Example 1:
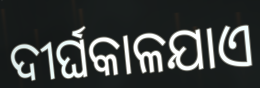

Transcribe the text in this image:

ଦୀର୍ଘକାଳଯାଏ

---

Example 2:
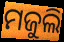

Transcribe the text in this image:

ମଜୁଲି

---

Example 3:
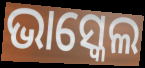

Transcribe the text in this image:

ଭାସ୍କେଲ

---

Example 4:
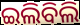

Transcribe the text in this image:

ଇଲିବିଲି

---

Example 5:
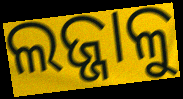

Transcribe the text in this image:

ଲଜ୍ଜାଳୁ